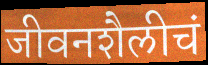
जीवनशैलीचं